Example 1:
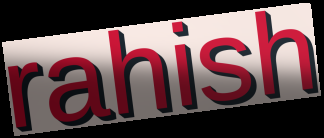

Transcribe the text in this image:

rahish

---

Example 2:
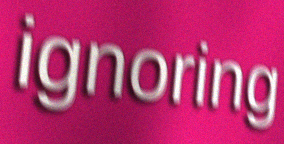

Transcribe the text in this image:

ignoring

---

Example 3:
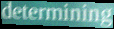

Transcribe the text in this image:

determining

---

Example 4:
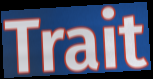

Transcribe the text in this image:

Trait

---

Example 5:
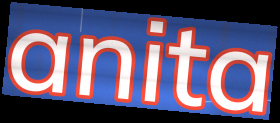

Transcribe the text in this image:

anita